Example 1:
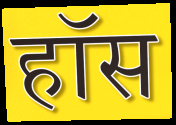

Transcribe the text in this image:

हॉस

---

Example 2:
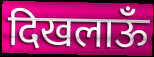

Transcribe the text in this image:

दिखलाऊँ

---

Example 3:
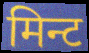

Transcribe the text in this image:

मिन्ट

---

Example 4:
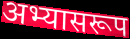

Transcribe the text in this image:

अभ्यासरूप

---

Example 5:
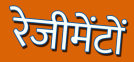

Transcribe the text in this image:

रेजीमेंटों